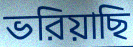
ভরিয়াছি